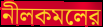
নীলকমলের